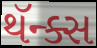
થૅન્ક્સ